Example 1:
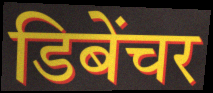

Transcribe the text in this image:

डिबेंचर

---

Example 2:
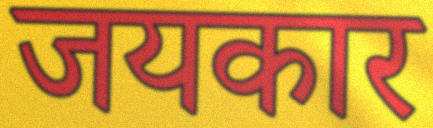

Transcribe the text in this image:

जयकार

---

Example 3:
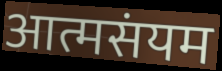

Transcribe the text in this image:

आत्मसंयम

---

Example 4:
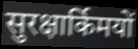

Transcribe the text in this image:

सुरक्षार्किमयों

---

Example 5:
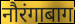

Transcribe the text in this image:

नौरंगाबाग